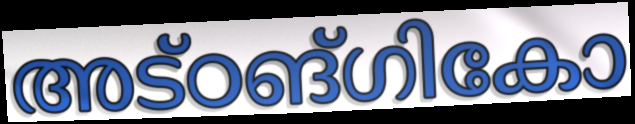
അട്ഠങ്ഗികോ